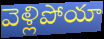
వెళ్లిపోయా